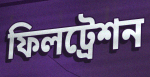
ফিলট্রেশন